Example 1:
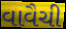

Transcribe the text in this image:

વાવૈચી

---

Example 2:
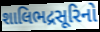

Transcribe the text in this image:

શાલિભદ્રસૂરિનો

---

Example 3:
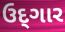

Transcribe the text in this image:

ઉદ્‌ગાર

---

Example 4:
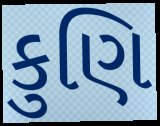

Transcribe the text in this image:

કુણિ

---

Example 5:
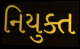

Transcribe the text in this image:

નિયુક્ત